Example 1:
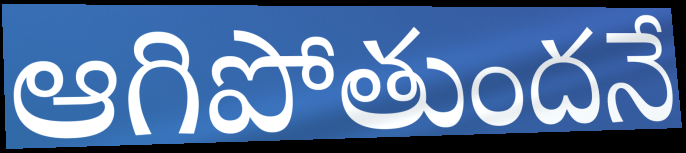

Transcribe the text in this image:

ఆగిపోతుందనే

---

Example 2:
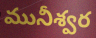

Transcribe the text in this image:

మునీశ్వర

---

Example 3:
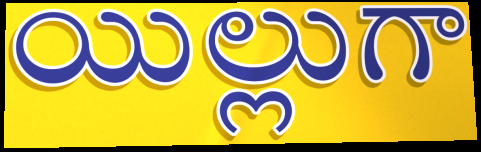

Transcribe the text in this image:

యిల్లుగా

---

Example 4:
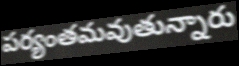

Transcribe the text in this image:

పర్యంతమవుతున్నారు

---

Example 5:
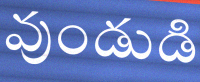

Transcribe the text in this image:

వుండుడి